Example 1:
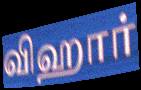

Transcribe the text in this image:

விஹார்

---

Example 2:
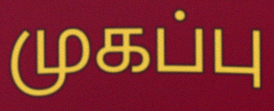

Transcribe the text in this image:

முகப்பு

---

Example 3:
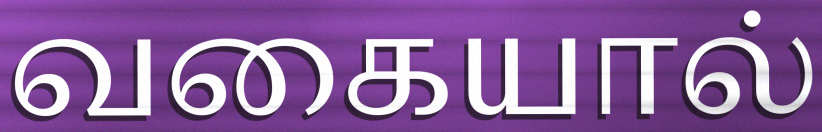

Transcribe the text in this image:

வகையால்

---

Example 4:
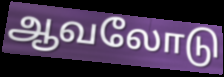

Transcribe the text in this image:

ஆவலோடு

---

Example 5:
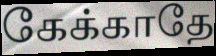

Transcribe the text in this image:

கேக்காதே